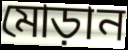
মোড়ান